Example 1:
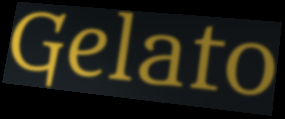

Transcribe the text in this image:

Gelato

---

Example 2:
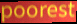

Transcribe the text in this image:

poorest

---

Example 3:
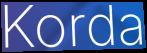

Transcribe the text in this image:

Korda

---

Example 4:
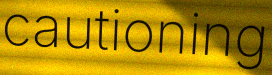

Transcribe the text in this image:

cautioning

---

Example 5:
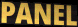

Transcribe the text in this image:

PANEL